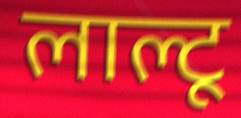
लाल्टू